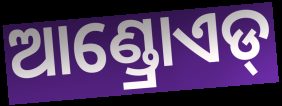
ଆଣ୍ଡ୍ରୋଏଡ୍